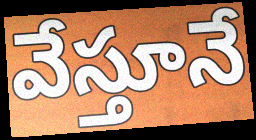
వేస్తూనే